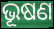
ଭୂଷଣ